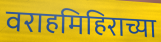
वराहमिहिराच्या